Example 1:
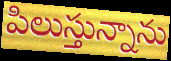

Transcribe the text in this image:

పిలుస్తున్నాను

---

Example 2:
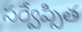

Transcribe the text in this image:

సర్వేప్సిత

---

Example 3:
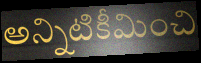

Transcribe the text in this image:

అన్నిటికీమించి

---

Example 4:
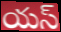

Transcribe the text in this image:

యస్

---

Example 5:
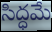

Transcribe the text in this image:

సిద్ధమే